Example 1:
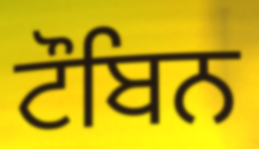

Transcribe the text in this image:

ਟੌਬਿਨ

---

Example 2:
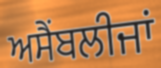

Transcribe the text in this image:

ਅਸੈਂਬਲੀਜਾਂ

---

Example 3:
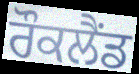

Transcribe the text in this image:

ਰੌਕਲੈਂਡ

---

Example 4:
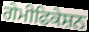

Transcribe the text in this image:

ਗੇਮੀਫਿਕੇਸ਼ਨ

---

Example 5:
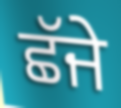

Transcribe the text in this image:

ਛੱਜੇ